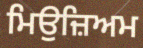
ਮਿਉਜ਼ਿਅਮ